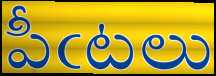
పీఁటలు